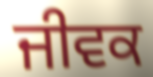
ਜੀਵਕ